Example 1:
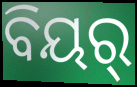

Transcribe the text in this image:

ବିୟର୍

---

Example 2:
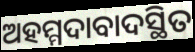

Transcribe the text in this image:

ଅହମ୍ମଦାବାଦସ୍ଥିତ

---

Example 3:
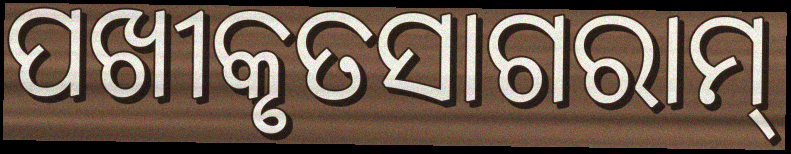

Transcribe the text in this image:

ପଖୀକୃତସାଗରାମ୍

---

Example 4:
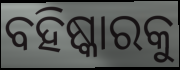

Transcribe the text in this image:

ବହିଷ୍କାରକୁ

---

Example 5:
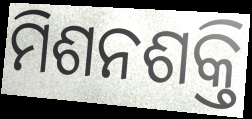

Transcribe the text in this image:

ମିଶନଶକ୍ତି